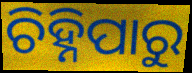
ଚିହ୍ନିପାରୁ